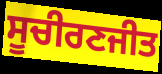
ਸੂਚੀਰਣਜੀਤ